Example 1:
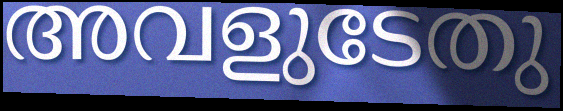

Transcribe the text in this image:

അവളുടേതു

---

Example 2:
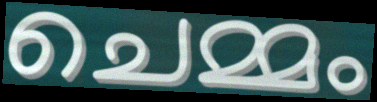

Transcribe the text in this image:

ചെമ്മം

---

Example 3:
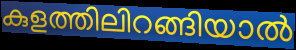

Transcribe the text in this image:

കുളത്തിലിറങ്ങിയാൽ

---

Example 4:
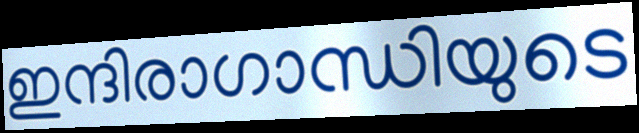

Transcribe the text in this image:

ഇന്ദിരാഗാന്ധിയുടെ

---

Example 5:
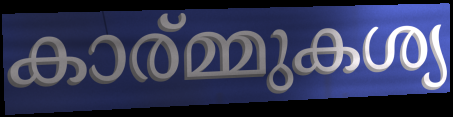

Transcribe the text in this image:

കാര്മ്മുകശ്യ